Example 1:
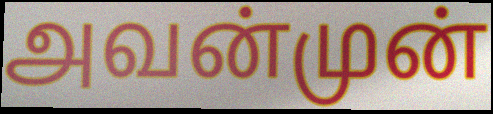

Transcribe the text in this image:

அவன்முன்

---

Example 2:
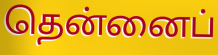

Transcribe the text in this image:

தென்னைப்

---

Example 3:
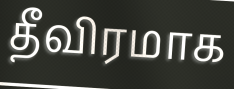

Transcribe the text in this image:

தீவிரமாக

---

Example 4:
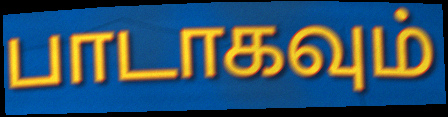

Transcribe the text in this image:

பாடாகவும்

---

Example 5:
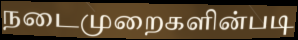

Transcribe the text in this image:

நடைமுறைகளின்படி